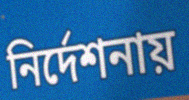
নির্দেশনায়